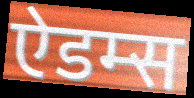
ऐडम्स